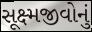
સૂક્ષ્મજીવોનું